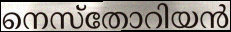
നെസ്തോറിയൻ